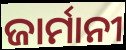
ଜାର୍ମାନୀ